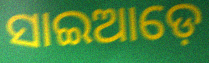
ସାଇଆଡ଼େ